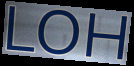
LOH